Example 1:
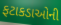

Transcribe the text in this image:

ફટાકડાઓની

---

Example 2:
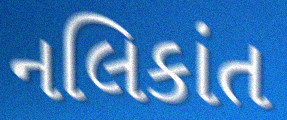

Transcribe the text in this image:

નલિકાંત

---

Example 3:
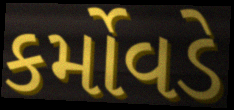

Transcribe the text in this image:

કર્મોવડે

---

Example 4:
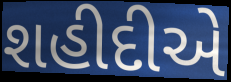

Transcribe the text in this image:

શહીદીએ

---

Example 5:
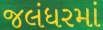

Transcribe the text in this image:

જલંધરમાં